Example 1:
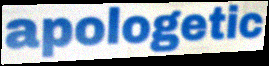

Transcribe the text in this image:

apologetic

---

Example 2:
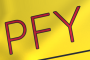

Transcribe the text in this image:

PFY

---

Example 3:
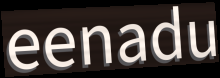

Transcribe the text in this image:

eenadu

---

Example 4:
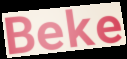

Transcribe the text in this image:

Beke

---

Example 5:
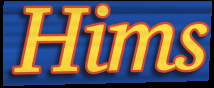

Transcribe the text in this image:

Hims